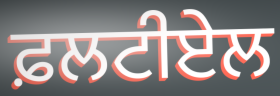
ਫ਼ਲਟੀਏਲ